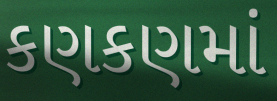
કણકણમાં